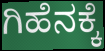
ಗಿಹೆನಕ್ಕೆ